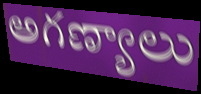
అగణ్యాలు